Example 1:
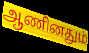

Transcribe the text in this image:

ஆணினதும்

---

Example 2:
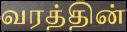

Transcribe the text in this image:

வரத்தின்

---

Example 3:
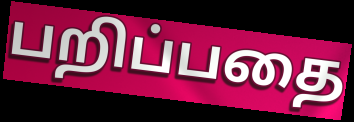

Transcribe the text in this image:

பறிப்பதை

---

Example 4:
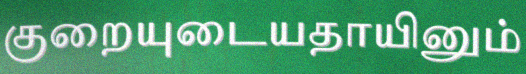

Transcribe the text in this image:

குறையுடையதாயினும்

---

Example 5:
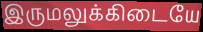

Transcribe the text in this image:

இருமலுக்கிடையே